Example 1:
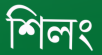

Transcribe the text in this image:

শিলং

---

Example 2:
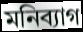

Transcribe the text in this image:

মনিব্যাগ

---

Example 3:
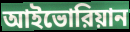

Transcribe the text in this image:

আইভোরিয়ান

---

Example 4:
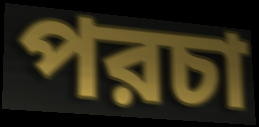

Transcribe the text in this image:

পরচা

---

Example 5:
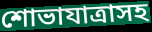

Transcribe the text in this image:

শোভাযাত্রাসহ